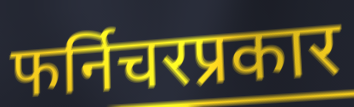
फर्निचरप्रकार